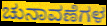
ಚುನಾವಣೆಗಳ